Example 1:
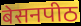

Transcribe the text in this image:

बेसनपीठ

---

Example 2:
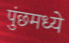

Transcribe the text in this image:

पुंछमध्ये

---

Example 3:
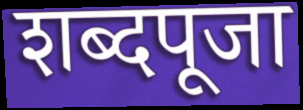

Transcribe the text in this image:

शब्दपूजा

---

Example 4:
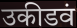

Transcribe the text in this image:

उकीडवं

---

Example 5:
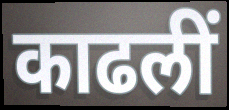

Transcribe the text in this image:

काढलीं